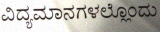
ವಿದ್ಯಮಾನಗಳಲ್ಲೊಂದು